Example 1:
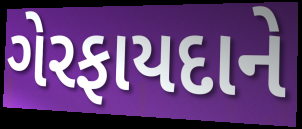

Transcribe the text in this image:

ગેરફાયદાને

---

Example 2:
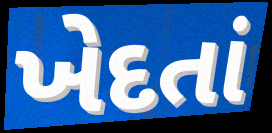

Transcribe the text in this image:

ખેદતાં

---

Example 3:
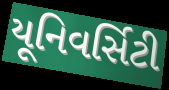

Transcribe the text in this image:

યૂનિવર્સિટી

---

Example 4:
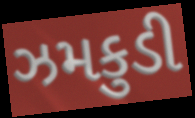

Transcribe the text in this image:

ઝમકુડી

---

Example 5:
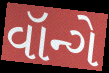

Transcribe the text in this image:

વૉન્ગે